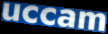
uccam